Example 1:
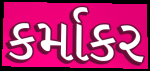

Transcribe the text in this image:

કર્માકર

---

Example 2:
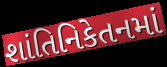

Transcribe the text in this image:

શાંતિનિકેતનમાં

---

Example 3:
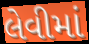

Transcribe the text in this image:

લેવીમાં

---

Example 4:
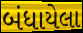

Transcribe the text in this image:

બંધાયેલા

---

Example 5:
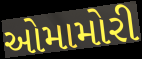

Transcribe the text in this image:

ઓમામોરી